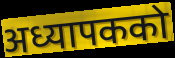
अध्यापकको